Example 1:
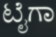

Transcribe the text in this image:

ಟೈಗಾ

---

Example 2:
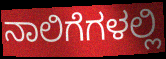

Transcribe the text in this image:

ನಾಲಿಗೆಗಳಲ್ಲಿ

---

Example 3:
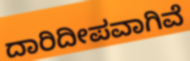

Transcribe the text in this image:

ದಾರಿದೀಪವಾಗಿವೆ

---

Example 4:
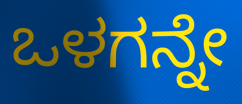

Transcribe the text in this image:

ಒಳಗನ್ನೇ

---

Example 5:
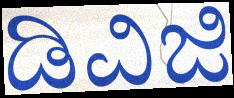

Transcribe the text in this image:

ಡಿವಿಜಿ